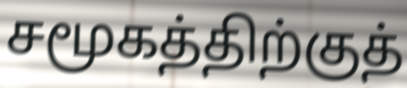
சமூகத்திற்குத்